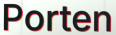
Porten